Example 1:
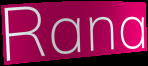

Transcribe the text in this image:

Rana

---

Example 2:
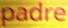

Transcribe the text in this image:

padre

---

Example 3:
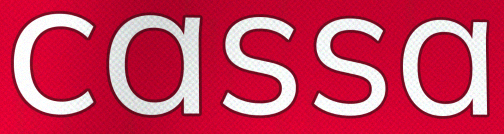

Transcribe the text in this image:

cassa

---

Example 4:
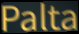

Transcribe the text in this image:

Palta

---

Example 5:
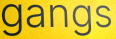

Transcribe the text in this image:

gangs